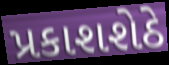
પ્રકાશશેઠે